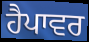
ਹੈਪਾਵਰ